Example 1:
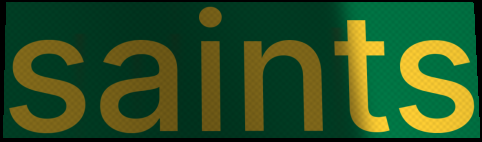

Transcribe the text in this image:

saints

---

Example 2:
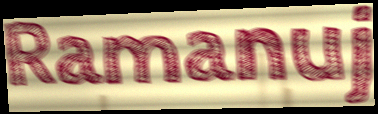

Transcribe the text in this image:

Ramanuj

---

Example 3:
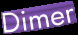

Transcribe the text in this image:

Dimer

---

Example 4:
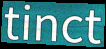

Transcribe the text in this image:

tinct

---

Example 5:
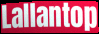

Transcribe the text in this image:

Lallantop